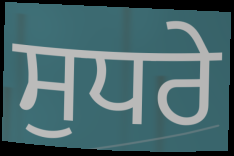
ਸੁਧਰੇ